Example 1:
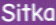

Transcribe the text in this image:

Sitka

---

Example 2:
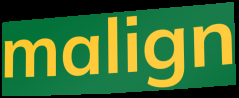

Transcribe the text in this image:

malign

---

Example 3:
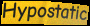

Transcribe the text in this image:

Hypostatic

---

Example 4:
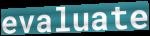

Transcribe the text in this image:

evaluate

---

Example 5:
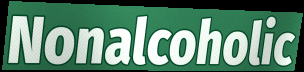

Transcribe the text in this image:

Nonalcoholic